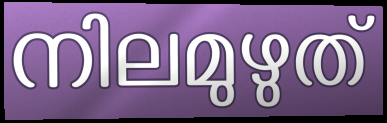
നിലമുഴുത്